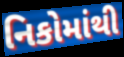
નિકોમાંથી